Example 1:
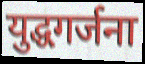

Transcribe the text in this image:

युद्धगर्जना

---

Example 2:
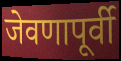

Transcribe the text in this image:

जेवणापूर्वी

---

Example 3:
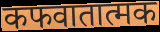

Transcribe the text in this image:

कफवातात्मक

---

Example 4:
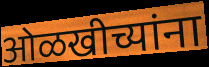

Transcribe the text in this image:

ओळखीच्यांना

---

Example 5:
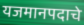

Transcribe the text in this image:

यजमानपदाचे